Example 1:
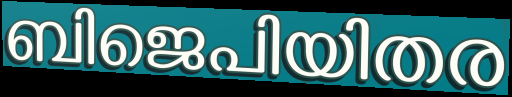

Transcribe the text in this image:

ബിജെപിയിതര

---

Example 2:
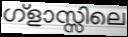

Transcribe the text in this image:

ഗ്ളാസ്സിലെ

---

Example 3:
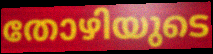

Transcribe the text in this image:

തോഴിയുടെ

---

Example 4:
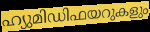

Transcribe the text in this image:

ഹ്യുമിഡിഫയറുകളും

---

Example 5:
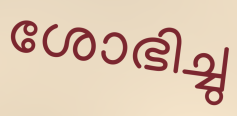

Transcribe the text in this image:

ശോഭിച്ചു